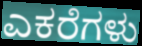
ಎಕರೆಗಳು